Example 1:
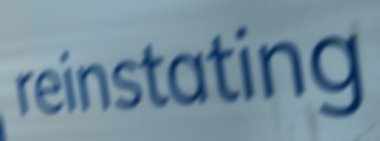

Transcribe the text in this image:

reinstating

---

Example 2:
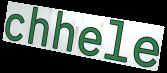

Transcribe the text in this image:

chhele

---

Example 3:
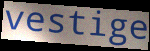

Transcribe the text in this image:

vestige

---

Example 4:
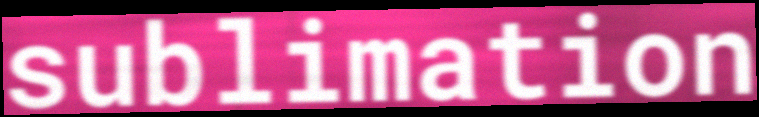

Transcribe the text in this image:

sublimation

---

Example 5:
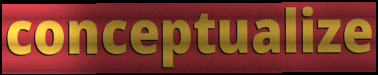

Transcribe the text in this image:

conceptualize